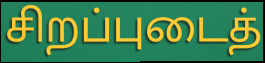
சிறப்புடைத்